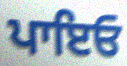
ਪਾਇਓ